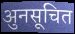
अुनसूचित